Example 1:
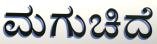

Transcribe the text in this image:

ಮಗುಚಿದೆ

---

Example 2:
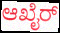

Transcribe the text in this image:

ಆಖೈರ್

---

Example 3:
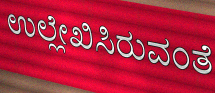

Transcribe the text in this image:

ಉಲ್ಲೇಖಿಸಿರುವಂತೆ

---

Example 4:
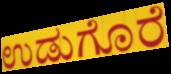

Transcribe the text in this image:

ಉಡುಗೊರೆ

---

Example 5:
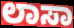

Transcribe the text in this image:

ಲಾಸಾ